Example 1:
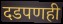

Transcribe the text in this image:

दडपणही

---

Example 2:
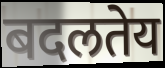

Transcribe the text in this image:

बदलतेय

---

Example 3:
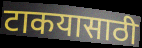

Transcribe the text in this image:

टाकयासाठी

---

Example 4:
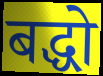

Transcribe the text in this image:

बद्धो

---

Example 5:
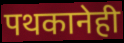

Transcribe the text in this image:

पथकानेही